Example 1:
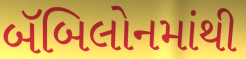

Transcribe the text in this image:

બૅબિલોનમાંથી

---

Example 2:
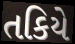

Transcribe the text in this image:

તકિયે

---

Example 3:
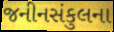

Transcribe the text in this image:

જનીનસંકુલના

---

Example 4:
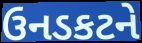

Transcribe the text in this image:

ઉનડકટને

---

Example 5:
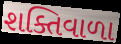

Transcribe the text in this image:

શક્તિવાળા